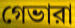
গেভারা